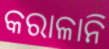
କରାଳାନି